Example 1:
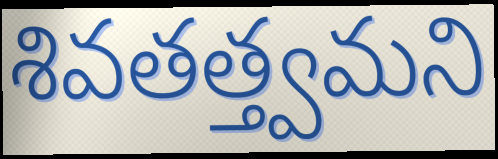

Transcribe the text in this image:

శివతత్త్వమని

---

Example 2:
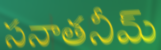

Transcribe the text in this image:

సనాతనీమ్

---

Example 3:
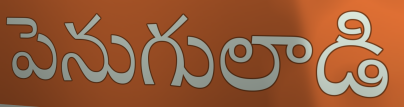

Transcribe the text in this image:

పెనుగులాడి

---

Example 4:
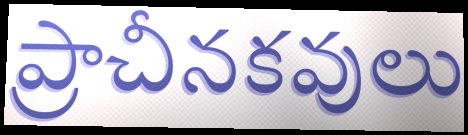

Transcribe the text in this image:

ప్రాచీనకవులు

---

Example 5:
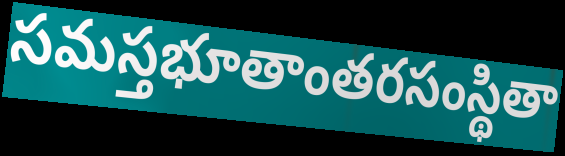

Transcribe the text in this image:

సమస్తభూతాంతరసంస్థితా